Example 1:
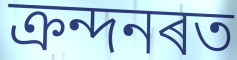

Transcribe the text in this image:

ক্ৰন্দনৰত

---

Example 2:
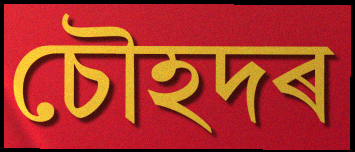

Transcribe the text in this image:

চৌহদৰ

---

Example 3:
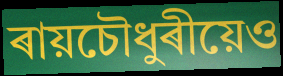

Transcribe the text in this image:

ৰায়চৌধুৰীয়েও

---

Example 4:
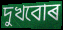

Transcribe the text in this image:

দুখবোৰ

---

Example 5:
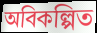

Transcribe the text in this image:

অবিকল্পিত